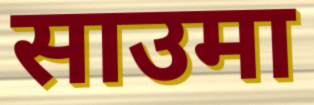
साउमा